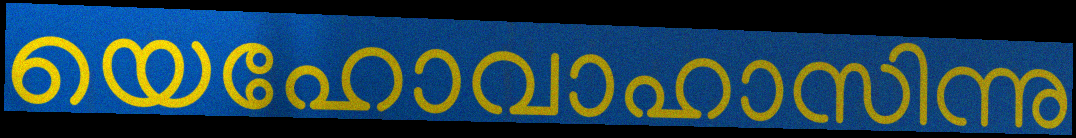
യെഹോവാഹാസിന്നു